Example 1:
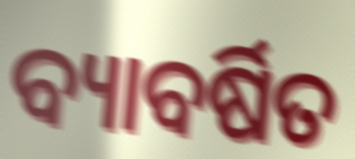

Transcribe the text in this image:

ବ୍ୟାବର୍ଷିତ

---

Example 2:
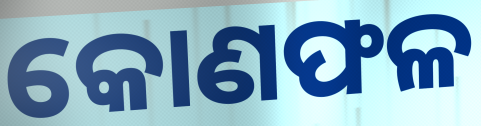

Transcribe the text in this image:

କୋଣଫଳ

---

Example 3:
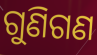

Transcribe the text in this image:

ଗୁଣିଗଣ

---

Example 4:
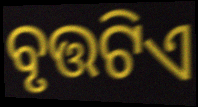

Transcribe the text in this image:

ବୃତ୍ତଟିଏ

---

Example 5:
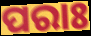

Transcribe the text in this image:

ପରାଃ